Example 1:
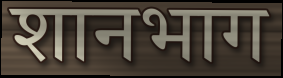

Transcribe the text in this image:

शानभाग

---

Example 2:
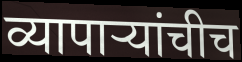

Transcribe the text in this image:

व्यापाऱ्यांचीच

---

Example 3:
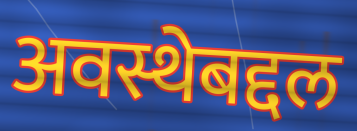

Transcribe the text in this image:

अवस्थेबद्दल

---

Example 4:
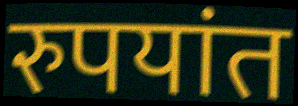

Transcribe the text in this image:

रुपयांत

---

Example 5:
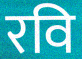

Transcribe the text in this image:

रवि